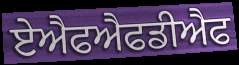
ਏਐਫਐਫਡੀਐਫ